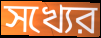
সখ্যের